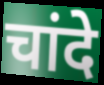
चांदे